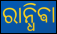
ରାନ୍ଧିଵା